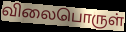
விலைபொருள்